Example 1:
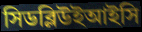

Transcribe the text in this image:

সিডব্লিউইআইসি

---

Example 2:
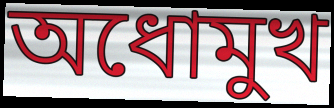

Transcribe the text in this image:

অধোমুখ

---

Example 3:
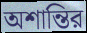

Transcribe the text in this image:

অশান্তির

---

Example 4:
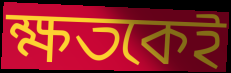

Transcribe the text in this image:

ক্ষতকেই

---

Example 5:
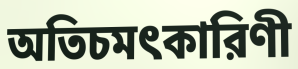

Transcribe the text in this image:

অতিচমৎকারিণী